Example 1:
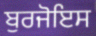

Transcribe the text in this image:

ਬੁਰਜੋਇਸ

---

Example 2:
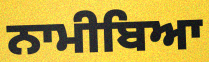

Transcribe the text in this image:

ਨਾਮੀਬਿਆ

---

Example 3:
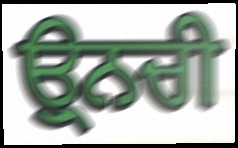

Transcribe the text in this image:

ਉ੍ਨਚੀ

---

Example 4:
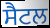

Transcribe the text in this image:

ਸੈਟਲ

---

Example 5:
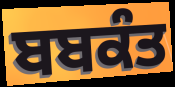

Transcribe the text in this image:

ਬਬਕੰਤ